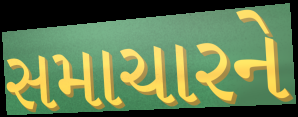
સમાચારને